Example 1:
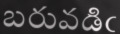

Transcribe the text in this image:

బరువడిఁ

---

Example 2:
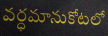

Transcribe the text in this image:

వర్ధమానుకోటలో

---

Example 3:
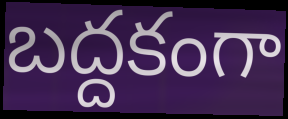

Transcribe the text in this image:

బద్దకంగా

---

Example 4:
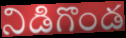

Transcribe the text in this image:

నిడిగొండ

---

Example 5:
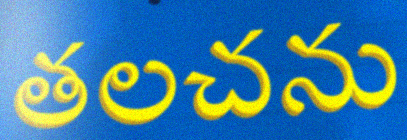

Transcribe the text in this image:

తలచను